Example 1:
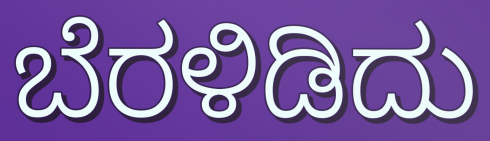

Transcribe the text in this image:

ಬೆರಳಿಡಿದು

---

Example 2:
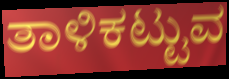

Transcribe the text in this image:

ತಾಳಿಕಟ್ಟುವ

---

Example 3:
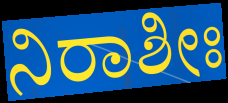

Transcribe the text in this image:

ನಿರಾಶೀಃ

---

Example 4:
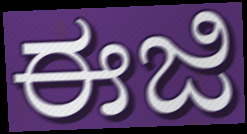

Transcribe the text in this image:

ಈಜಿ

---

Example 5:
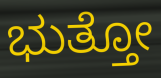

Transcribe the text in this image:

ಭುತ್ತೋ